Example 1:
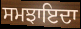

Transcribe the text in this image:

ਸਮਝਾਇਦਾ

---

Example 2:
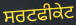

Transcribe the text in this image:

ਸਰਟਫੀਕੇਟ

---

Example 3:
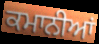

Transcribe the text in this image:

ਕਮਾਨੀਆਂ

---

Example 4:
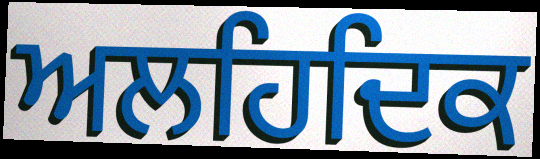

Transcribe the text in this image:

ਅਲਹਿਦਿਕ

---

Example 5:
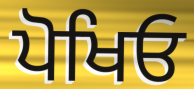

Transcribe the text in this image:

ਪੋਖਿਓ